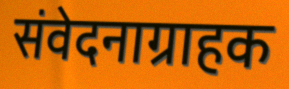
संवेदनाग्राहक